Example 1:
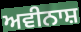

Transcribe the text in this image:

ਅਵੀਨਾਸ਼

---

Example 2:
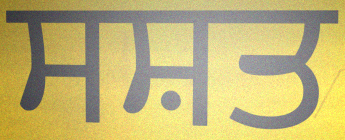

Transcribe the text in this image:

ਸਸ਼ਤ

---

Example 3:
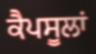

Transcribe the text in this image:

ਕੈਪਸੂਲਾਂ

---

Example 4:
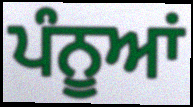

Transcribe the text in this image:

ਪੰਨੂਆਂ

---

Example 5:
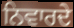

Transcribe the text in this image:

ਨਿਵਾਰਦੇ